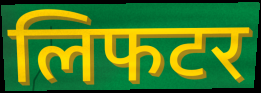
लिफटर